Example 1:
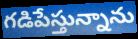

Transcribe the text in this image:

గడిపేస్తున్నాను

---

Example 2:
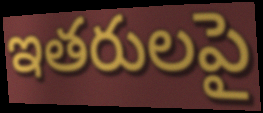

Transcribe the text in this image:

ఇతరులపై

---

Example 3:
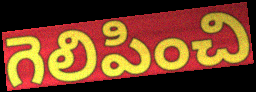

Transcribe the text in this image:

గెలిపించి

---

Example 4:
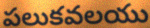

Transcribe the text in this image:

పలుకవలయు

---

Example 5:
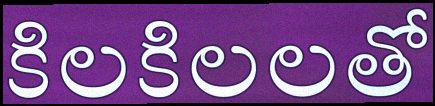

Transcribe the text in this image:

కిలకిలలతో